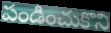
పండించుకొని